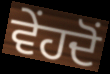
ਵੇਂਹਦੋਂ